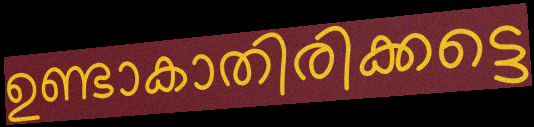
ഉണ്ടാകാതിരിക്കട്ടെ